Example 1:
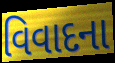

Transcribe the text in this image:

વિવાદના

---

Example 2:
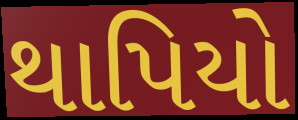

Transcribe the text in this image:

થાપિયો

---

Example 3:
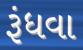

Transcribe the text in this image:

રૂંધવા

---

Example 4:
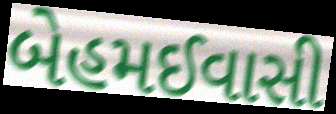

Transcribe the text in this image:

બેહમઈવાસી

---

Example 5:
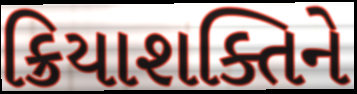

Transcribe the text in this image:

ક્રિયાશક્તિને